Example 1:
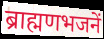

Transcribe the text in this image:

ब्राह्मणभजनें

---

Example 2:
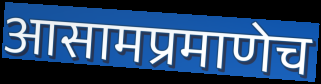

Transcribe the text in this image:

आसामप्रमाणेच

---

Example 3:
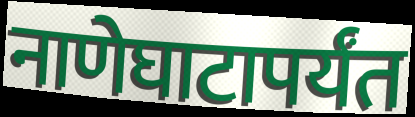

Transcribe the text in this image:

नाणेघाटापर्यंत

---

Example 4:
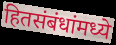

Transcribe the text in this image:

हितसंबंधांमध्ये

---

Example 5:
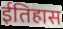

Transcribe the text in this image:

ईतिहास